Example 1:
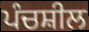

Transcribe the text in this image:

ਪੰਚਸ਼ੀਲ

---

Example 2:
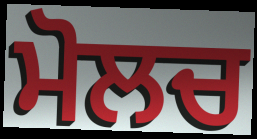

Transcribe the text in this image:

ਮੋਲਚ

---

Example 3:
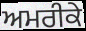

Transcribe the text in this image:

ਅਮਰੀਕੇ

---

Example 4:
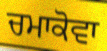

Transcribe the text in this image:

ਚਮਾਕੋਵਾ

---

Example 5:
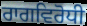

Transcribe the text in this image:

ਰਾਗਵਿਰੋਧੀ